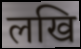
लखि